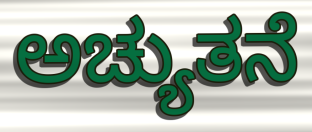
ಅಚ್ಯುತನೆ